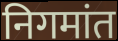
निगमांत